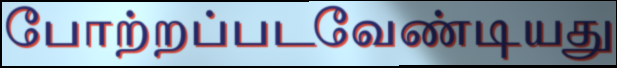
போற்றப்படவேண்டியது